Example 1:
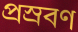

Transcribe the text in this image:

প্রস্রবণ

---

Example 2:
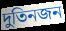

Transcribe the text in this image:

দুতিনজন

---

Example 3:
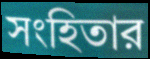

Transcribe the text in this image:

সংহিতার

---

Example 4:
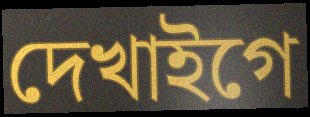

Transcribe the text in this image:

দেখাইগে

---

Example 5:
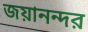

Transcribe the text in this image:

জয়ানন্দর